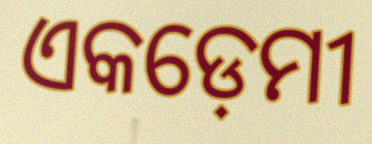
ଏକଡ଼େମୀ